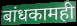
बांधकामही